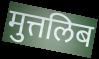
मुत्तलिब